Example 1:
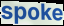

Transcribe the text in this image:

spoke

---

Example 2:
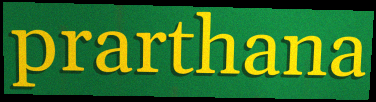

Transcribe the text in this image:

prarthana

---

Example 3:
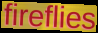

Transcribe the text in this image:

fireflies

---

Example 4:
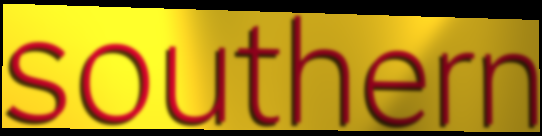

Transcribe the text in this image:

southern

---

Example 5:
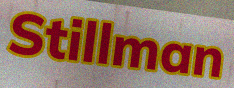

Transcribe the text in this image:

Stillman